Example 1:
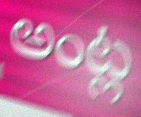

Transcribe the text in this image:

అంట్ల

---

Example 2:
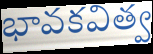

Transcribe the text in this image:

భావకవిత్వ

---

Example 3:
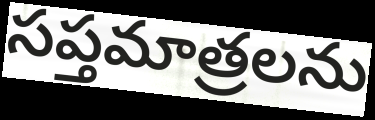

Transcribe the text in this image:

సప్తమాత్రలను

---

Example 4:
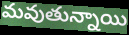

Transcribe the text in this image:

మవుతున్నాయి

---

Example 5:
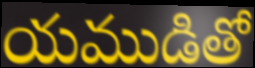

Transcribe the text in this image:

యముడితో